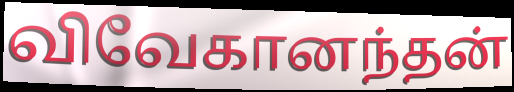
விவேகானந்தன்